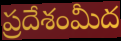
ప్రదేశంమీద